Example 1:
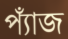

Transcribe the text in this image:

প্যাঁজ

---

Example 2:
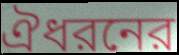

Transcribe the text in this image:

ঐধরনের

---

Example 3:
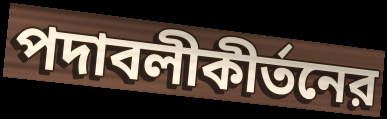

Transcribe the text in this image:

পদাবলীকীর্তনের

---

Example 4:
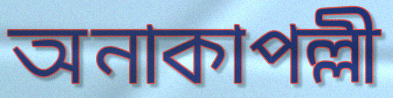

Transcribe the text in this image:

অনাকাপল্লী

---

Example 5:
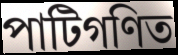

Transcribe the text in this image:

পাটিগণিত